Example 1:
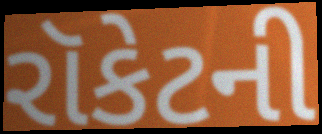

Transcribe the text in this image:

રૉકેટની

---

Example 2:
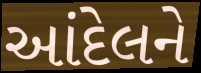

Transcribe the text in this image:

આંદેલને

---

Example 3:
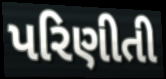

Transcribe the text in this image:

પરિણીતી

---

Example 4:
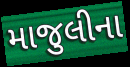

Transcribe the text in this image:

માજુલીના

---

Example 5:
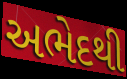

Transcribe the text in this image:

અભેદથી